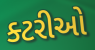
ક્ટરીઓ